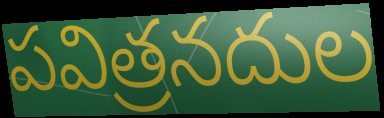
పవిత్రనదుల